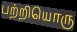
பற்றியொரு